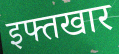
इफ्तखार